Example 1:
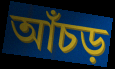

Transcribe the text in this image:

আঁচড়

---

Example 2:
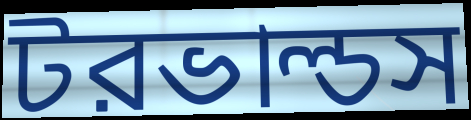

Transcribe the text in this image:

টরভাল্ডস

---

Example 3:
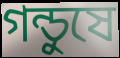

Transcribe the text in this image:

গন্ডুষে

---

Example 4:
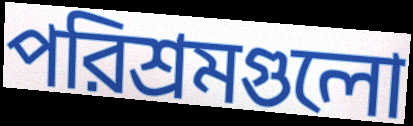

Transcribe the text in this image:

পরিশ্রমগুলো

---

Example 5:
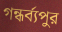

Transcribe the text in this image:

গন্ধর্ব্যপুর